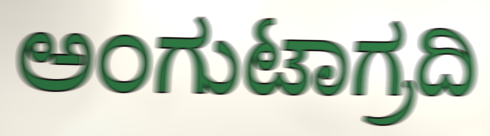
ಅಂಗುಟಾಗ್ರದಿ